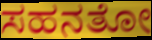
ಸಹನತೋ